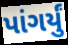
પાંગર્યું